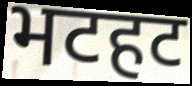
भटहट